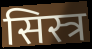
सिस्त्र